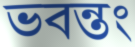
ভবন্তং